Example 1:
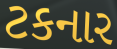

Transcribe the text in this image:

ટકનાર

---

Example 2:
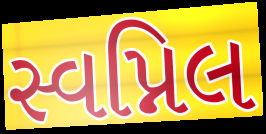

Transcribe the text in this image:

સ્વપ્નિલ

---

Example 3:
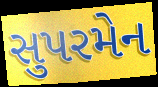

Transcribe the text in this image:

સુપરમેન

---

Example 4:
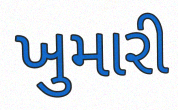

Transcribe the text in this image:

ખુમારી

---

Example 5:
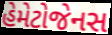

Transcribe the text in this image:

હેમેટોજેનસ